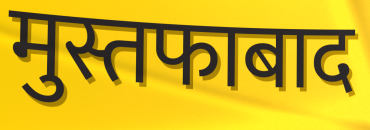
मुस्तफाबाद